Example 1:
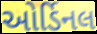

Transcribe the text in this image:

ઓર્ડિનલ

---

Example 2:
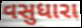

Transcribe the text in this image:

વસુધારા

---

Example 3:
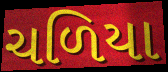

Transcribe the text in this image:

ચળિયા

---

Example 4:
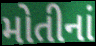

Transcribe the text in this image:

મોતીનાં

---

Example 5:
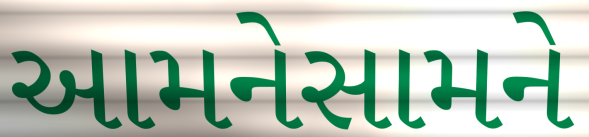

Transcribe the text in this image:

આમનેસામને